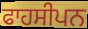
ਫਾਹਸੀਪਨ